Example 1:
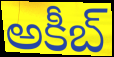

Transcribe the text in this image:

అకీబ్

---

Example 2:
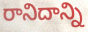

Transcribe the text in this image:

రానిదాన్ని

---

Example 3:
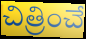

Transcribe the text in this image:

చిత్రించే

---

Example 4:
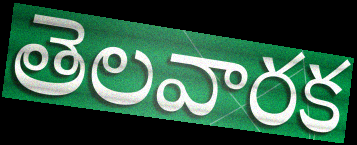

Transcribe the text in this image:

తెలవారక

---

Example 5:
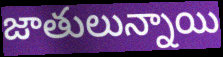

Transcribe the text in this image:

జాతులున్నాయి